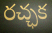
రచ్ఛక